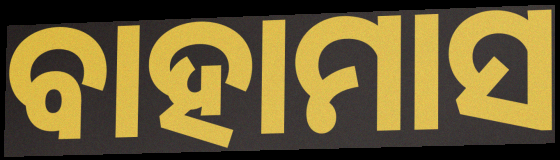
ବାହାମାସ